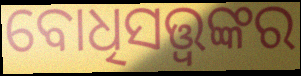
ବୋଧିସତ୍ତ୍ଵଙ୍କର